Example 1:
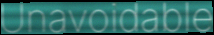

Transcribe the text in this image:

Unavoidable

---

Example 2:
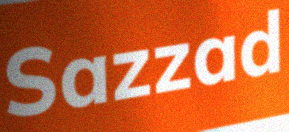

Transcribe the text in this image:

Sazzad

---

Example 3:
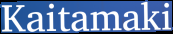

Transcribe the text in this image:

Kaitamaki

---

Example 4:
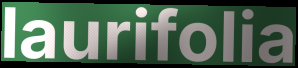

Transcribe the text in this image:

laurifolia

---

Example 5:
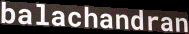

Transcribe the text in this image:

balachandran